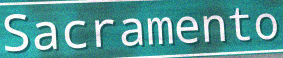
Sacramento